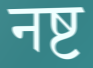
नष्ट